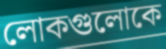
লোকগুলোকে